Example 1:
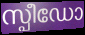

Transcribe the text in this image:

സ്പീഡോ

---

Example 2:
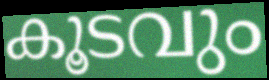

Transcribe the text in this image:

കൂടവും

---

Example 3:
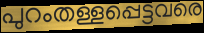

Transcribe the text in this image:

പുറംതള്ളപ്പെട്ടവരെ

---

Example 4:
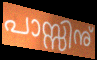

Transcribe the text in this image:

പാസ്സിനു്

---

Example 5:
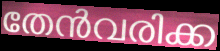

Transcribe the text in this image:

തേൻവരിക്ക